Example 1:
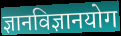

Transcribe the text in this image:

ज्ञानविज्ञानयोग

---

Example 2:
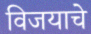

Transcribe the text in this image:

विजयाचे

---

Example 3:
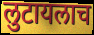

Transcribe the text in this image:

लुटायलाच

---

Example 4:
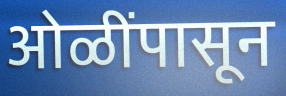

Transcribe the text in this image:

ओळींपासून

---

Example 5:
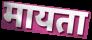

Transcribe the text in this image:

मायता